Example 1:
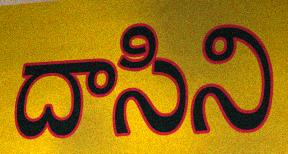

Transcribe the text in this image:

దాసిని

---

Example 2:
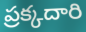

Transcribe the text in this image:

ప్రక్కదారి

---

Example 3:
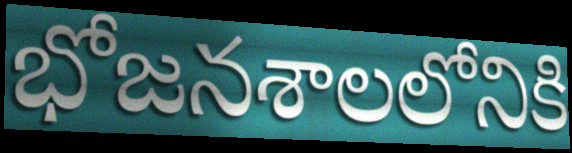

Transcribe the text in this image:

భోజనశాలలోనికి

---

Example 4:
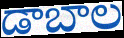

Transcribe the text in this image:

డాబాల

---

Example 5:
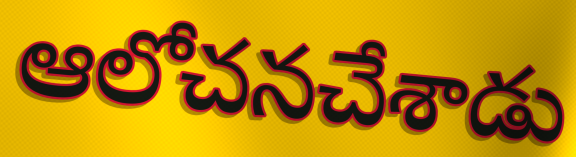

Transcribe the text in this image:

ఆలోచనచేశాడు